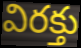
విరక్తు